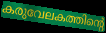
കരുവേലകത്തിന്റെ